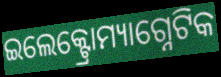
ଇଲେକ୍ଟ୍ରୋମ୍ୟାଗ୍ନେଟିକ